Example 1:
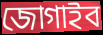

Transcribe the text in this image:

জোগাইব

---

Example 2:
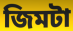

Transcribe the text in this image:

জিমটা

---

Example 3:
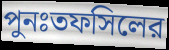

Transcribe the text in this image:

পুনঃতফসিলের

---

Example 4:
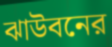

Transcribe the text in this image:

ঝাউবনের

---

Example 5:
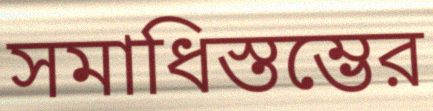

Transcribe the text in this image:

সমাধিস্তম্ভের